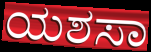
ಯಶಸಾ